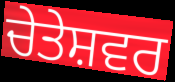
ਚੇਤੇਸ਼ਵਰ